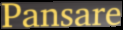
Pansare